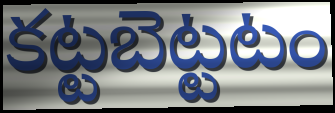
కట్టబెట్టటం